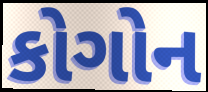
કોગોન